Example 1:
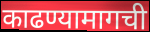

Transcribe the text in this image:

काढण्यामागची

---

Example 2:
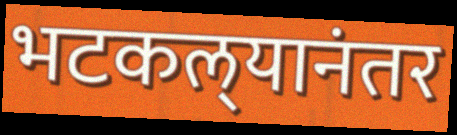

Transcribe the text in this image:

भटकल्यानंतर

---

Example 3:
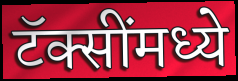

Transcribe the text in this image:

टॅक्सींमध्ये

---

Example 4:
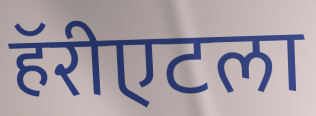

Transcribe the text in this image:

हॅरीएटला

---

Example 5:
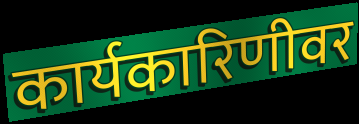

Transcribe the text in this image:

कार्यकारिणीवर